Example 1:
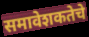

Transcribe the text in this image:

समावेशकतेचे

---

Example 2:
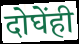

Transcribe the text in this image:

दोघेंही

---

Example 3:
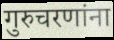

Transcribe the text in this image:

गुरुचरणांना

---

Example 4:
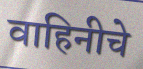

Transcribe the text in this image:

वाहिनीचे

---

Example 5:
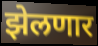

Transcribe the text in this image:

झेलणार